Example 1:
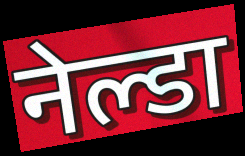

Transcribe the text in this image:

नेल्डा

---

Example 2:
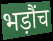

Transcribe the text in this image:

भड़ौंच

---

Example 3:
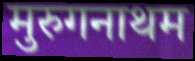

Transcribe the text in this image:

मुरुगनाथम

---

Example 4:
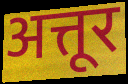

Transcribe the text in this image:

अत्तूर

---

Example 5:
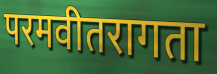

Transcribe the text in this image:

परमवीतरागता